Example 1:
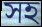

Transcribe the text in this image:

সহ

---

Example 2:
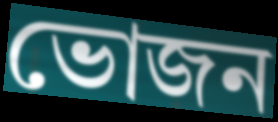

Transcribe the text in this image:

ভোজন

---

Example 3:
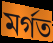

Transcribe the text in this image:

মৰ্গত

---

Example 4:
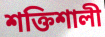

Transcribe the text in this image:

শক্তিশালী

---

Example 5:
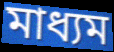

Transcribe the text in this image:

মাধ্যম